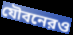
যৌবনেরও